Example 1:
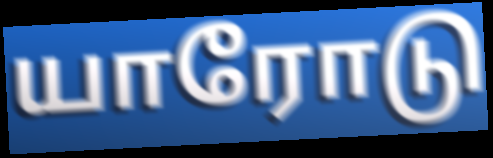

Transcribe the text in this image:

யாரோடு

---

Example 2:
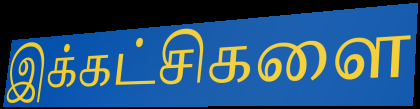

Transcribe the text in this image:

இக்கட்சிகளை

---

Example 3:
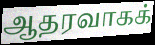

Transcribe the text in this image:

ஆதரவாகக்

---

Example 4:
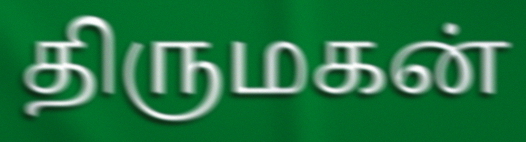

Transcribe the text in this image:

திருமகன்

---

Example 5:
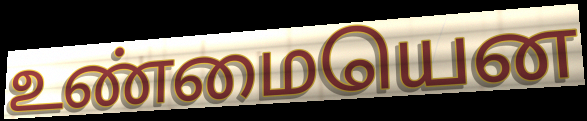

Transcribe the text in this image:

உண்மையென